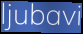
ljubavi